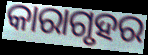
କାରାଗୃହର